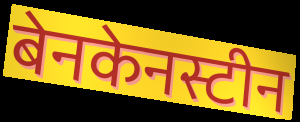
बेनकेनस्टीन